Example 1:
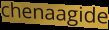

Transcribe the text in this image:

chenaagide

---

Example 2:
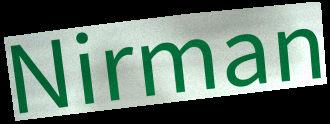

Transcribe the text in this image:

Nirman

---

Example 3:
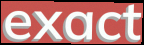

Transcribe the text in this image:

exact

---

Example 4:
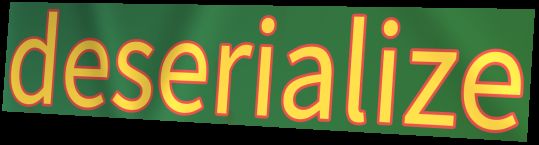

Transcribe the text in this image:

deserialize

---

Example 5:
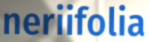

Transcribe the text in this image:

neriifolia